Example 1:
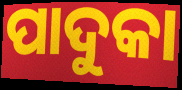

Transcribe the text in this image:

ପାଦୁକା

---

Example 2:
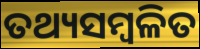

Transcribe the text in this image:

ତଥ୍ୟସମ୍ବଳିତ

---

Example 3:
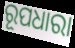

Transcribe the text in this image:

ରୂପଧାରା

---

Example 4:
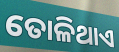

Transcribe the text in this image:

ତୋଳିଥାଏ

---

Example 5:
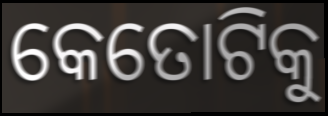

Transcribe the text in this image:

କେତୋଟିକୁ